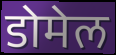
डोमेल